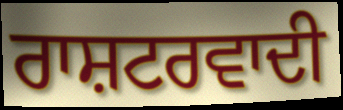
ਰਾਸ਼ਟਰਵਾਦੀ